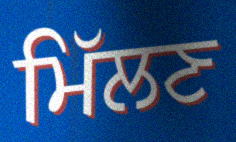
ਮਿੱਲਣ